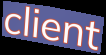
client